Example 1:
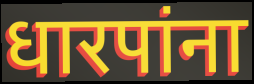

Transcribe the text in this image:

धारपांना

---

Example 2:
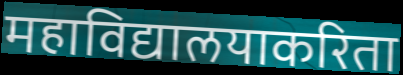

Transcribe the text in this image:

महाविद्यालयाकरिता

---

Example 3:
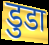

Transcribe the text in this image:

डुडा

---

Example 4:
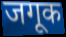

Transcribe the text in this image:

जगूक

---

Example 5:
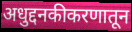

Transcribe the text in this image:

अधुद्दनकीकरणातून